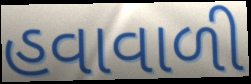
હવાવાળી